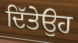
ਦਿੱਤੇਉਹ